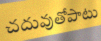
చదువుతోపాటు